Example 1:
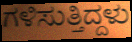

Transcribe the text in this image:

ಗಳಿಸುತ್ತಿದ್ದಳು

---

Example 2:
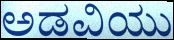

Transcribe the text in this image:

ಅಡವಿಯು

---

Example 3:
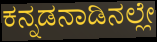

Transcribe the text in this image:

ಕನ್ನಡನಾಡಿನಲ್ಲೇ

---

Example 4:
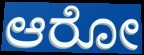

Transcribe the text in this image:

ಆರೋ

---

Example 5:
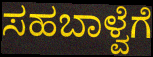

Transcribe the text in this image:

ಸಹಬಾಳ್ವೆಗೆ